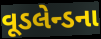
વૂડલેન્ડના